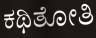
ಕಥಿತೋತಿ